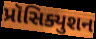
પ્રૉસિક્યુશન